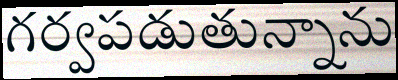
గర్వపడుతున్నాను